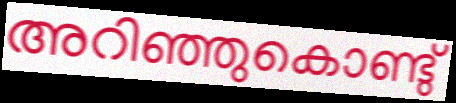
അറിഞ്ഞുകൊണ്ടു്